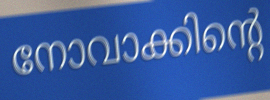
നോവാക്കിന്റെ